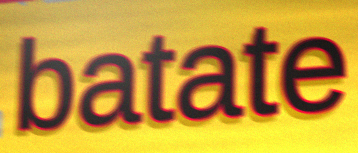
batate